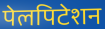
पेलपिटेशन